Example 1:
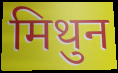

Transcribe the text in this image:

मिथुन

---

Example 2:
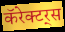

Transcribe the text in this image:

कॅरेक्टर्स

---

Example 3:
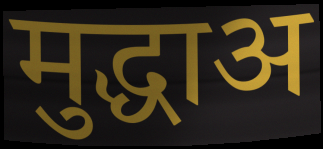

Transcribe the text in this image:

मुद्धाअ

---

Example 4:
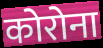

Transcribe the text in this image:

कोरोना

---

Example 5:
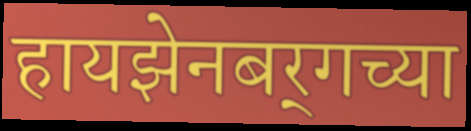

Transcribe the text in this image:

हायझेनबर्गच्या